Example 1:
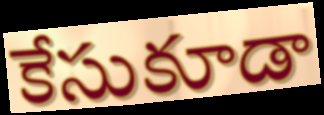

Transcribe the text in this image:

కేసుకూడా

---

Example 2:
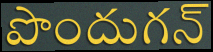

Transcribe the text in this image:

పొందుగన్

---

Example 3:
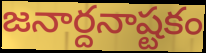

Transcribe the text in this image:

జనార్దనాష్టకం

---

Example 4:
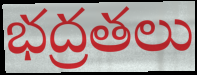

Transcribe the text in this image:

భద్రతలు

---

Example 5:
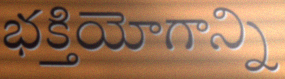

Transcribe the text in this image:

భక్తియోగాన్ని